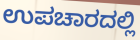
ಉಪಚಾರದಲ್ಲಿ